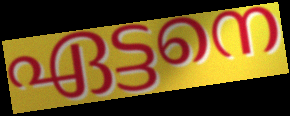
ഏട്ടനെ